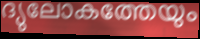
ദ്യുലോകത്തേയും